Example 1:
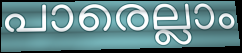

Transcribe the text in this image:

പാരെല്ലാം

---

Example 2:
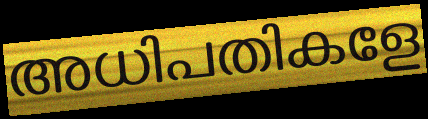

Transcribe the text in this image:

അധിപതികളേ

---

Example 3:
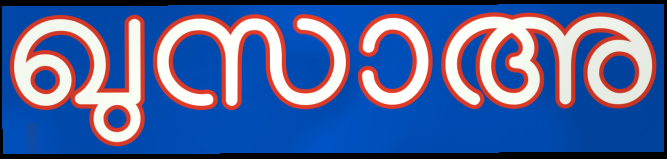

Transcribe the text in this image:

ഖുസാഅ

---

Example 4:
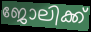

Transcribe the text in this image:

ജോലിക്ക്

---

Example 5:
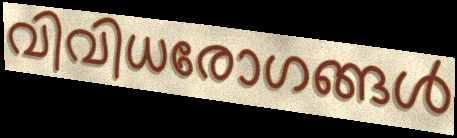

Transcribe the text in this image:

വിവിധരോഗങ്ങൾ